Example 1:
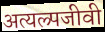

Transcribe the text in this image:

अत्यल्पजीवी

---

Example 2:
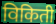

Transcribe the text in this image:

विकिती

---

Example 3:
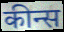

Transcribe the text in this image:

कीन्स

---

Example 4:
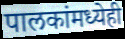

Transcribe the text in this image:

पालकांमध्येही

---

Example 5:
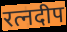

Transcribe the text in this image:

रत्नदीप